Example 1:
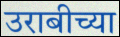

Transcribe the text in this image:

उराबीच्या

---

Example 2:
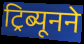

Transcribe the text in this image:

ट्रिब्यूनने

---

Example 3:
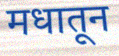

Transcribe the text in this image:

मधातून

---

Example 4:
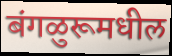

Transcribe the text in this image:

बंगळुरूमधील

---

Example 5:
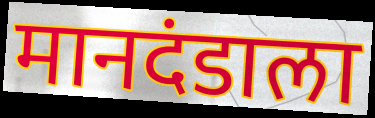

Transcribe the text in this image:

मानदंडाला